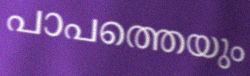
പാപത്തെയും